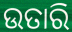
ଉତାରି